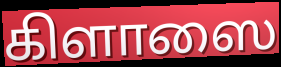
கிளாஸை